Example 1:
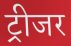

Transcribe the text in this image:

ट्रीजर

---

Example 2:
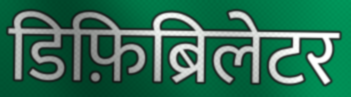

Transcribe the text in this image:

डिफ़िब्रिलेटर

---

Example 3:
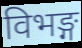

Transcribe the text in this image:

विभङ्ग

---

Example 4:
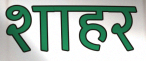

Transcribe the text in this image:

शाहर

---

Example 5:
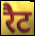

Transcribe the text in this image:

रैट